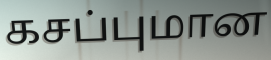
கசப்புமான